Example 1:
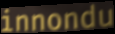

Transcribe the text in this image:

innondu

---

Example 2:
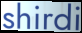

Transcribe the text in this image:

shirdi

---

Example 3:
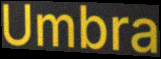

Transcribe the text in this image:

Umbra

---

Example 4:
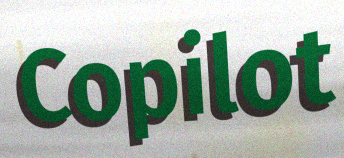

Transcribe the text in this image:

Copilot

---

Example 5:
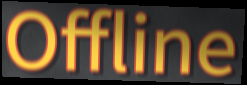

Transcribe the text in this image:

Offline